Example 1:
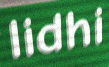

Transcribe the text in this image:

lidhi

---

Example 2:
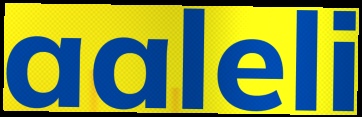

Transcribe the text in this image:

aaleli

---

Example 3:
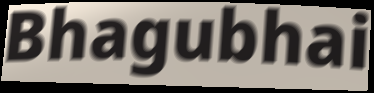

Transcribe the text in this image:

Bhagubhai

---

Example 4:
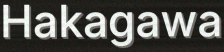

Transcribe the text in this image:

Hakagawa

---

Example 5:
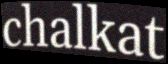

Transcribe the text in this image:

chalkat